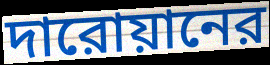
দারোয়ানের